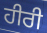
ਹੀਰੀ